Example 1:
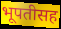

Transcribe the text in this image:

भूपतीसह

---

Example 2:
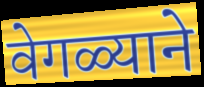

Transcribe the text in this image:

वेगळ्याने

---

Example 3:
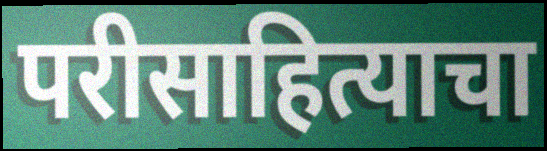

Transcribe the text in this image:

परीसाहित्याचा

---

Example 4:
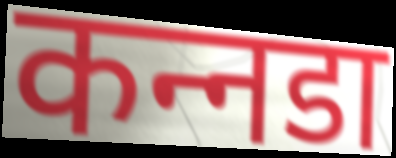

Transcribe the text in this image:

कन्नडा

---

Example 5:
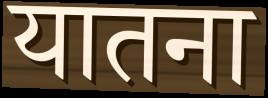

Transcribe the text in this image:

यातना